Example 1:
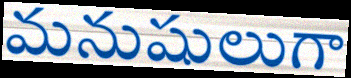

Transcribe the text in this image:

మనుషులుగా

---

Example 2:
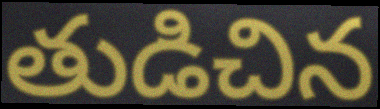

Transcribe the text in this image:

తుడిచిన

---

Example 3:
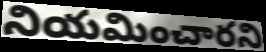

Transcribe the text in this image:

నియమించారని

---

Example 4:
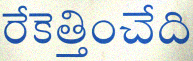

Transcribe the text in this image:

రేకెత్తించేది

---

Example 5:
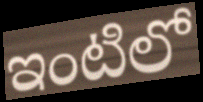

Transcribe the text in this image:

ఇంటిలో